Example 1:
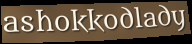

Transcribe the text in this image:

ashokkodlady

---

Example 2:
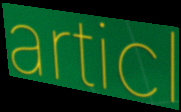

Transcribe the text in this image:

articl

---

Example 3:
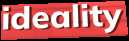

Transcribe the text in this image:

ideality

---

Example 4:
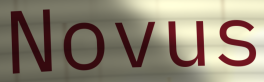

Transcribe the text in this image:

Novus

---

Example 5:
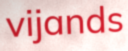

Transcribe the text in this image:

vijands